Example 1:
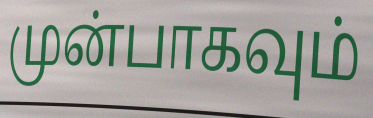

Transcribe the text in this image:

முன்பாகவும்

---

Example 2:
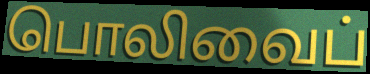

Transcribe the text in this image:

பொலிவைப்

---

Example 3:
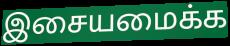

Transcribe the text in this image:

இசையமைக்க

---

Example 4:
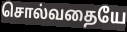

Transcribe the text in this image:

சொல்வதையே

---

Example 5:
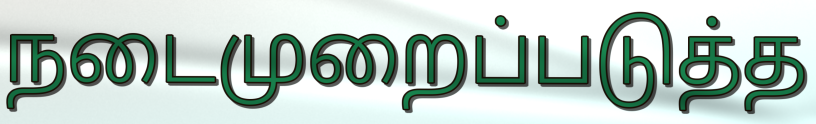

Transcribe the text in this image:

நடைமுறைப்படுத்த